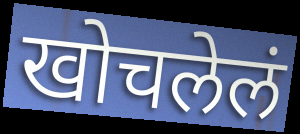
खोचलेलं